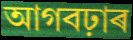
আগবঢ়াৰ